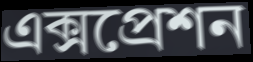
এক্সপ্রেশন